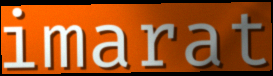
imarat